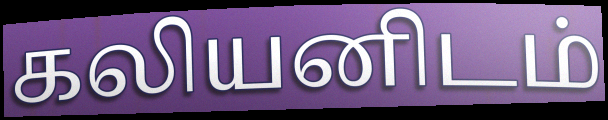
கலியனிடம்